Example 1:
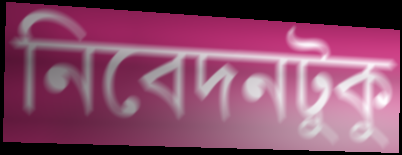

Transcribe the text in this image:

নিবেদনটুকু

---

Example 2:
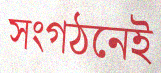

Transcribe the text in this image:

সংগঠনেই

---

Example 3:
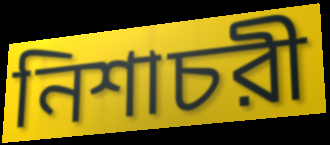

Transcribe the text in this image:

নিশাচরী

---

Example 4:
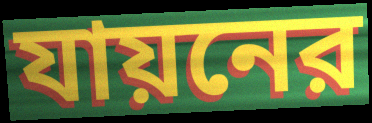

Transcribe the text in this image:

যায়নের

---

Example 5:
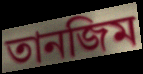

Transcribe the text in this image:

তানজিম